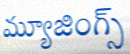
మ్యూజింగ్స్